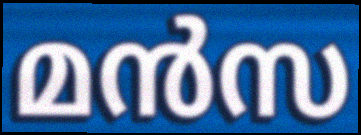
മൻസ